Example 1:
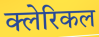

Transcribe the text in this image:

क्लेरिकल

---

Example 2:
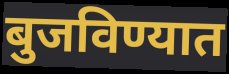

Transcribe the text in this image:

बुजविण्यात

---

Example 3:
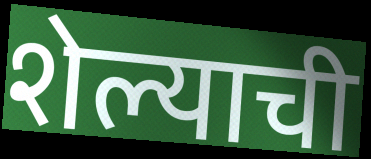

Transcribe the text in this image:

शेल्याची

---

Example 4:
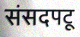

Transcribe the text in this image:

संसदपटू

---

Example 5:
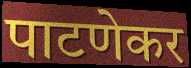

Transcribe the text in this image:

पाटणेकर